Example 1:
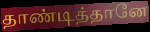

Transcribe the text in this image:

தாண்டித்தானே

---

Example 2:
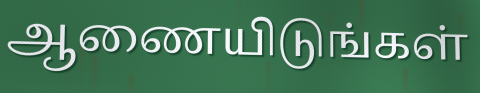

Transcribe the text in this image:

ஆணையிடுங்கள்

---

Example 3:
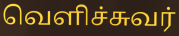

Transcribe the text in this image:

வெளிச்சுவர்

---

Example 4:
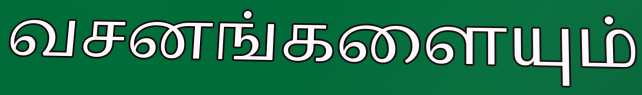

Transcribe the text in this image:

வசனங்களையும்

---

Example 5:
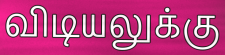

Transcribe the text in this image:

விடியலுக்கு